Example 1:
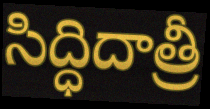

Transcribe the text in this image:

సిద్ధిదాత్రీ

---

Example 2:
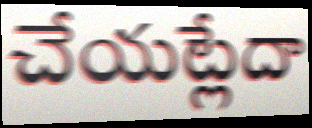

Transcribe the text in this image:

చేయట్లేదా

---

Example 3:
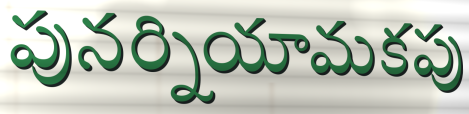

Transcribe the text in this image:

పునర్నియామకపు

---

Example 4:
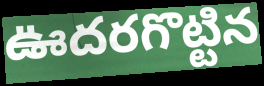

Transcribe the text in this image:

ఊదరగొట్టిన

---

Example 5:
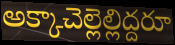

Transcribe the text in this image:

అక్కాచెల్లెల్లిద్దరూ